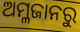
ଅମ୍ଳଜାନରୁ